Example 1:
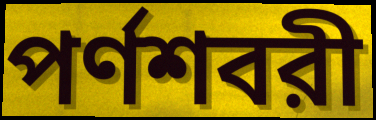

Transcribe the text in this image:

পর্ণশবরী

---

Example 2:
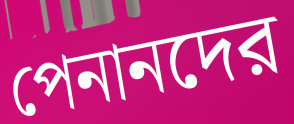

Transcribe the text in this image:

পেনানদের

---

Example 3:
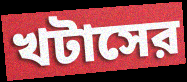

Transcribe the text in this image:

খটাসের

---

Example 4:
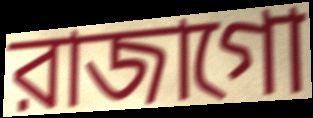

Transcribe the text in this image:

রাজাগো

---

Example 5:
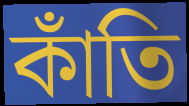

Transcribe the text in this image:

কাঁতি